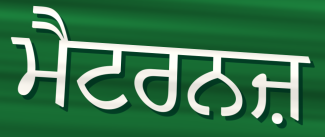
ਮੈਟਰਨਜ਼